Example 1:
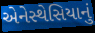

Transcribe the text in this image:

એનેસ્થેસિયાનું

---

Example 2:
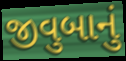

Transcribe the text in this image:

જીવુબાનું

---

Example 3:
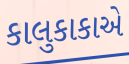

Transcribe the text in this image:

કાલુકાકાએ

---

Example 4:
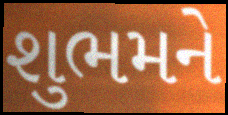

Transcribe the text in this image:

શુભમને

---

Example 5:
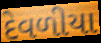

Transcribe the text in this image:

દેવળીયા